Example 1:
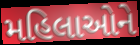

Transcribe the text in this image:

મહિલાઓને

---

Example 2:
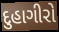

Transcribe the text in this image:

દુહાગીરો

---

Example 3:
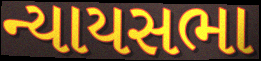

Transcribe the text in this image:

ન્યાયસભા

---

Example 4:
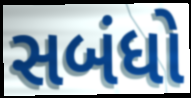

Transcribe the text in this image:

સબંધો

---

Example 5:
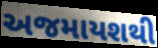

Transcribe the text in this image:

અજમાયશથી